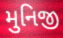
મુનિજી